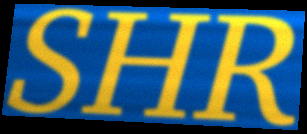
SHR